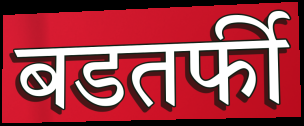
बडतर्फी